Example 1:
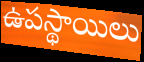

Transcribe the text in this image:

ఉపస్థాయిలు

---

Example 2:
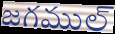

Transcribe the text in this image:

జగముల్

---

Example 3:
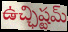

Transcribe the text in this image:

ఉచ్ఛిష్టమ్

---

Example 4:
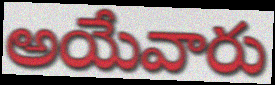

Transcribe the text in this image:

అయేవారు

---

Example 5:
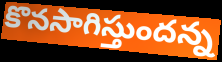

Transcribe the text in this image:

కొనసాగిస్తుందన్న